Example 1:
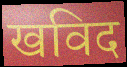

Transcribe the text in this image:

खविद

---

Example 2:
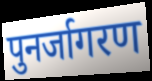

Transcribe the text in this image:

पुनर्जागरण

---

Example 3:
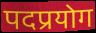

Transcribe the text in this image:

पदप्रयोग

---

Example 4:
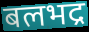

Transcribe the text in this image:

बलभद्र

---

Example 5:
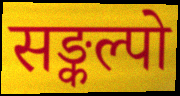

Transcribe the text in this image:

सङ्कल्पो